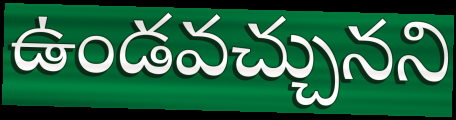
ఉండవచ్చునని